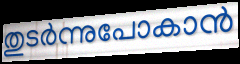
തുടർന്നുപോകാൻ